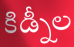
కిడ్నీల